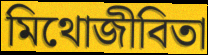
মিথোজীবিতা